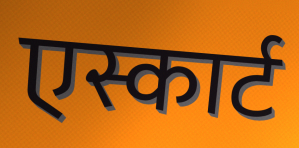
एस्कार्ट